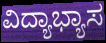
ವಿದ್ಯಾಭ್ಯಾಸ